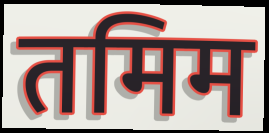
तमिम